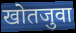
खोतजुवा